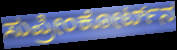
ಸುಪ್ರೀಂಕೋರ್ಟ್‌ನ